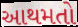
આથમતો